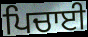
ਪਿਚਾਈ